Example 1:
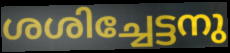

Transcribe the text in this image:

ശശിച്ചേട്ടനു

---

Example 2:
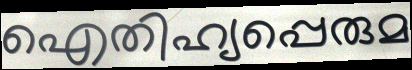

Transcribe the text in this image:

ഐതിഹ്യപ്പെരുമ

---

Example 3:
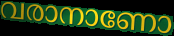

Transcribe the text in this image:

വരാനാണോ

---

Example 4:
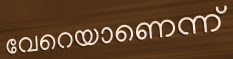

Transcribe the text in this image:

വേറെയാണെന്ന്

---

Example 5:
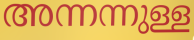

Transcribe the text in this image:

അന്നന്നുള്ള